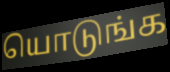
யொடுங்க